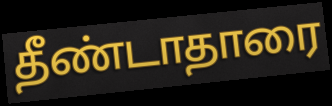
தீண்டாதாரை